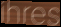
ihres